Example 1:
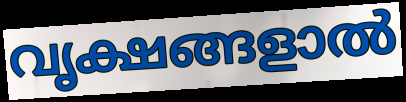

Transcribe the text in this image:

വൃക്ഷങ്ങളാൽ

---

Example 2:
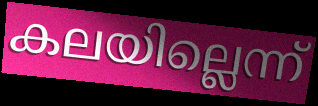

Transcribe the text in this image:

കലയില്ലെന്ന്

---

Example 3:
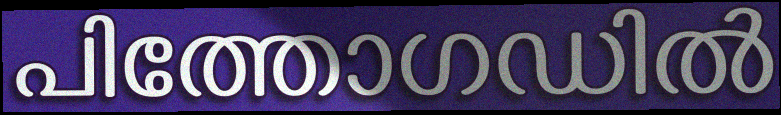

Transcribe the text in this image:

പിത്തോഗഡിൽ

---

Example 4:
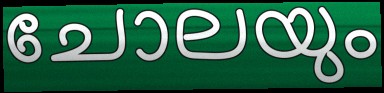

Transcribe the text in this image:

ചോലയും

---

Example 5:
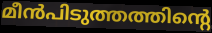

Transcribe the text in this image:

മീൻപിടുത്തത്തിന്റെ